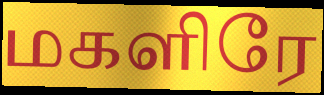
மகளிரே